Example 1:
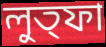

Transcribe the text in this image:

লুত্ফা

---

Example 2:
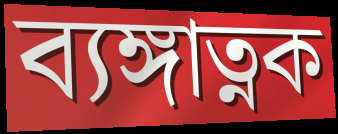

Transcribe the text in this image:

ব্যঙ্গাত্নক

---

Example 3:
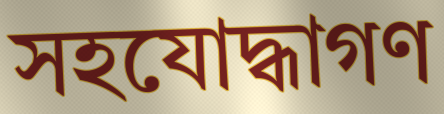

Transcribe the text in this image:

সহযোদ্ধাগণ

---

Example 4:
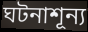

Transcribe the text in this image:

ঘটনাশূন্য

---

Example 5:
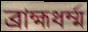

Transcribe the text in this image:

ব্রাহ্মধর্ম্ম